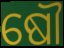
ଷୌ